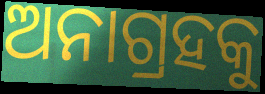
ଅନାଗ୍ରହକୁ